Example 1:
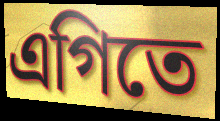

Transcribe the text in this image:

এগিতে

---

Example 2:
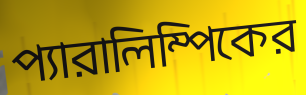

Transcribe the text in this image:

প্যারালিম্পিকের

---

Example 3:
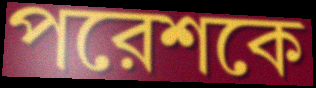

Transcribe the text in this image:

পরেশকে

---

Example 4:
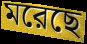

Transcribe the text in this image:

মরেছে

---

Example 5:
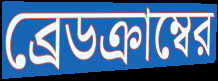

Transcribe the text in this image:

ব্রেডক্রাম্বের